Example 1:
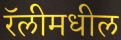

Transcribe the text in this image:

रॅलीमधील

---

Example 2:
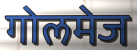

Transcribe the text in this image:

गोलमेज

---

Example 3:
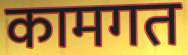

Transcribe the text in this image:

कामगत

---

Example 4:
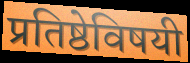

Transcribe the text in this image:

प्रतिष्ठेविषयी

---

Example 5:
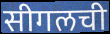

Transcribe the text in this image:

सीगलची